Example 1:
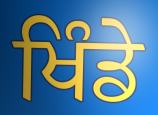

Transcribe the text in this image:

ਖਿੰਡੇ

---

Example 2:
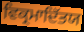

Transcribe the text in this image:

ਵਿਕ੍ਰਮਾਦਿੱਤਯ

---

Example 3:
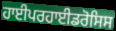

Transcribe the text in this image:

ਹਾਈਪਰਹਾਈਡਰੋਸਿਸ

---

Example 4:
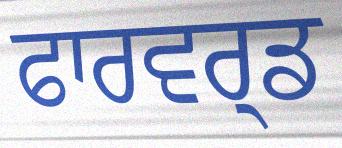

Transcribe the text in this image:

ਫਾਰਵਰ੍ਡ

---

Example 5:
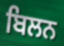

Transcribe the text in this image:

ਬਿਲਨ